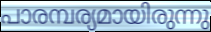
പാരമ്പര്യമായിരുന്നു